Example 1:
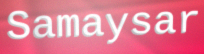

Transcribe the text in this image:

Samaysar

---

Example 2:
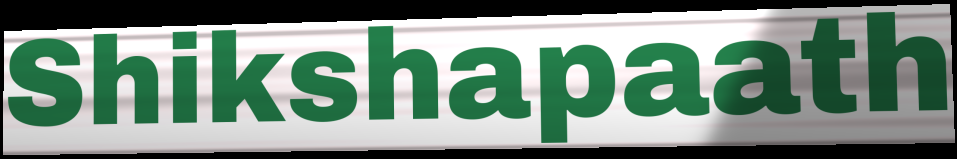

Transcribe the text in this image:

Shikshapaath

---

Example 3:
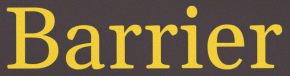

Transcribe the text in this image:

Barrier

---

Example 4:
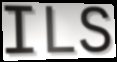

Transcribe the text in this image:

ILS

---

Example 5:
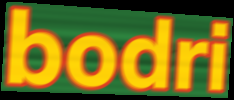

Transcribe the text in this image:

bodri